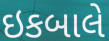
ઇકબાલે